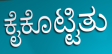
ಕೈಕೊಟ್ಟಿತು